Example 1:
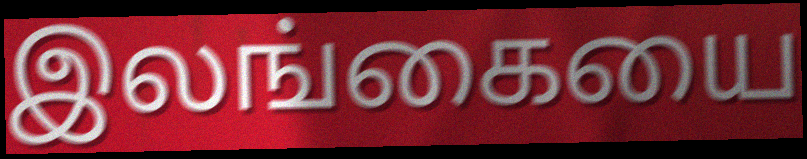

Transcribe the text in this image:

இலங்கையை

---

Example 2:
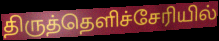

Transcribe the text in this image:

திருத்தெளிச்சேரியில்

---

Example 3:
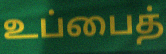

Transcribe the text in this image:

உப்பைத்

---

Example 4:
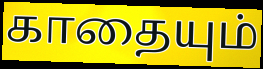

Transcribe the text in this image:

காதையும்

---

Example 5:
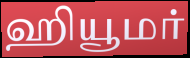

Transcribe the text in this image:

ஹியூமர்